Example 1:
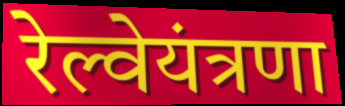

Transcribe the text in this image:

रेल्वेयंत्रणा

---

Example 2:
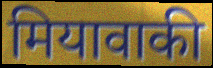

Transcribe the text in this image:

मियावाकी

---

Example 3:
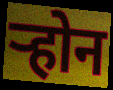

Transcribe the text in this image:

र्‍होन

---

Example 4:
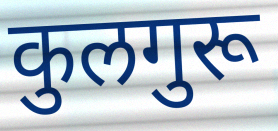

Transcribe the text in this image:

कुलगुरू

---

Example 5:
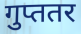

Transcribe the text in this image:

गुप्ततर